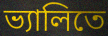
ভ্যালিতে